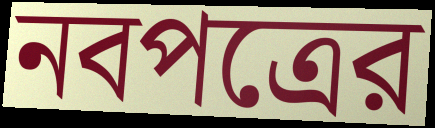
নবপত্রের